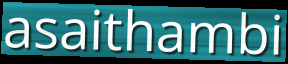
asaithambi